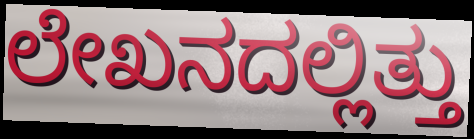
ಲೇಖನದಲ್ಲಿತ್ತು